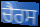
ਚੈਰਸ